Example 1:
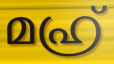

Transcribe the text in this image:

മഹ്ര്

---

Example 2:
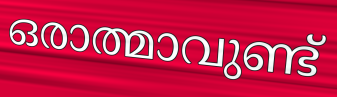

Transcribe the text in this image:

ഒരാത്മാവുണ്ട്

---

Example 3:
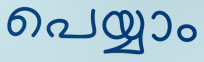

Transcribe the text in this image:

പെയ്യാം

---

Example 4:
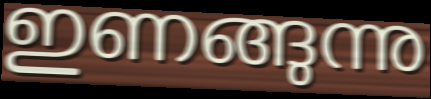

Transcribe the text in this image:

ഇണങ്ങുന്നു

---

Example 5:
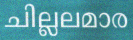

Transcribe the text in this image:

ചില്ലലമാര